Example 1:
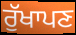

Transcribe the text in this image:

ਰੁੱਖਾਪਣ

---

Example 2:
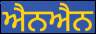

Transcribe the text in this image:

ਐਨਐਨ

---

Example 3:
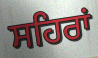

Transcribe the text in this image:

ਸਹਿਰਾਂ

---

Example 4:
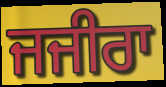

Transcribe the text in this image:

ਜਜੀਰਾ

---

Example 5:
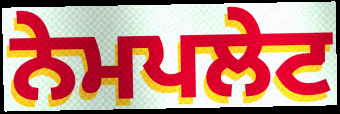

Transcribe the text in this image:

ਨੇਮਪਲੇਟ